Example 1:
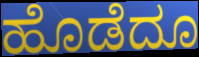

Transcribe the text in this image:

ಹೊಡೆದೂ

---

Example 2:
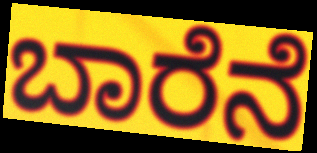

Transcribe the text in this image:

ಬಾರೆನೆ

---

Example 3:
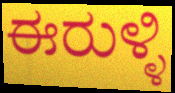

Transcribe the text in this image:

ಈರುಳ್ಳಿ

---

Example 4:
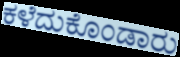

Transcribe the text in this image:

ಕಳೆದುಕೊಂಡಾರು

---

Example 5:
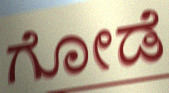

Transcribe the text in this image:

ಗೋಡೆ